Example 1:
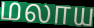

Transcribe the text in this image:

மலாய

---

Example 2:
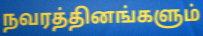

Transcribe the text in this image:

நவரத்தினங்களும்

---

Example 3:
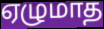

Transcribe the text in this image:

ஏழுமாத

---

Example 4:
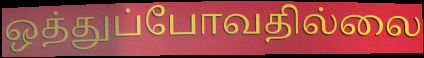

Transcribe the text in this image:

ஒத்துப்போவதில்லை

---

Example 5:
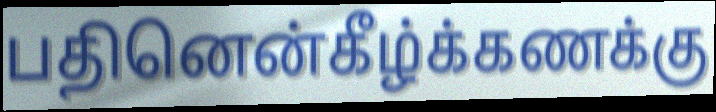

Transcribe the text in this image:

பதினென்கீழ்க்கணக்கு